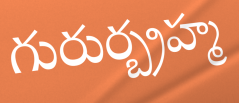
గురుర్బ్రహ్మ